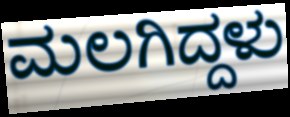
ಮಲಗಿದ್ದಳು